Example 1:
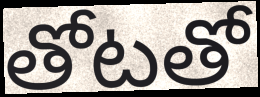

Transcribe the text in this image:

తోటతో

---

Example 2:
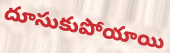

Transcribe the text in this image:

దూసుకుపోయాయి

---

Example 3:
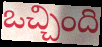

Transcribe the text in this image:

ఒచ్చింది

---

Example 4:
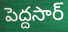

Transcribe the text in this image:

పెద్దసార్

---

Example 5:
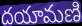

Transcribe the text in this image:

దయామణి